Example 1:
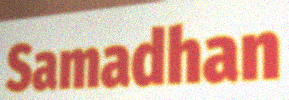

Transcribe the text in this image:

Samadhan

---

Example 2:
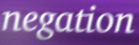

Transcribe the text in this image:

negation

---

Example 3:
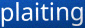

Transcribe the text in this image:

plaiting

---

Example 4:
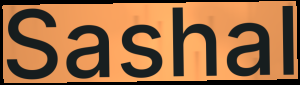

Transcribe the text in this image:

Sashal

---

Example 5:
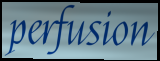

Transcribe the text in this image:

perfusion